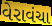
વેરાવંચા